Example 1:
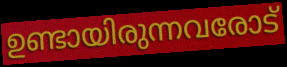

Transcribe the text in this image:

ഉണ്ടായിരുന്നവരോട്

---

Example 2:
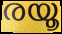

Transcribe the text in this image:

രയൂ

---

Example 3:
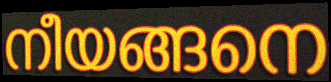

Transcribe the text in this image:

നീയങ്ങനെ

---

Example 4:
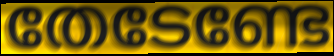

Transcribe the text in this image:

തേടേണ്ടേ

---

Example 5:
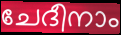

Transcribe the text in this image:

ചേദീനാം